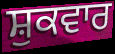
ਸ਼ੁਕਵਾਰ